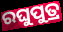
ରଘୁପୁତ୍ର